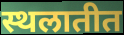
स्थलातीत